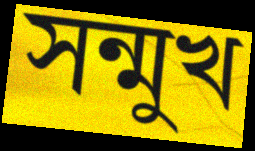
সন্মুখ